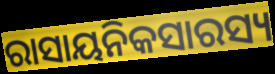
ରାସାୟନିକସାରସ୍ୟ